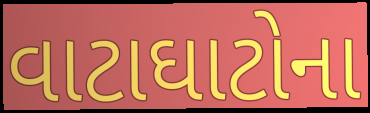
વાટાઘાટોના